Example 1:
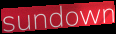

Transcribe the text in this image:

sundown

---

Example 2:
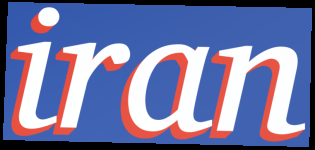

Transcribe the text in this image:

iran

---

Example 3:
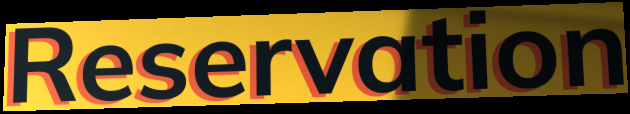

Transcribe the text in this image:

Reservation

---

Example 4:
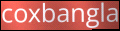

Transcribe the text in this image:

coxbangla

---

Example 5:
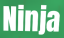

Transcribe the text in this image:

Ninja